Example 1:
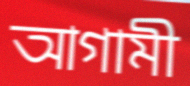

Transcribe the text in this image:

আগামী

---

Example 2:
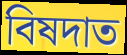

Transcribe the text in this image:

বিষদাত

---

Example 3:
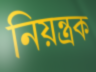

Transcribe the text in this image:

নিয়ন্ত্রক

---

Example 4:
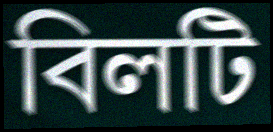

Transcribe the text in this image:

বিলটি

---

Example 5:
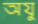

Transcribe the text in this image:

অযু